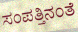
ಸಂಪತ್ತಿನಂತೆ